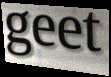
geet